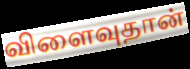
விளைவுதான்